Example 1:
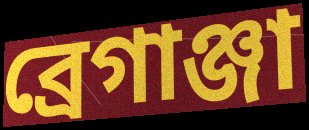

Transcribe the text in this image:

ব্রেগাঞ্জা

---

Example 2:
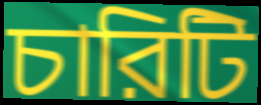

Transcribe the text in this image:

চারিটি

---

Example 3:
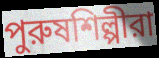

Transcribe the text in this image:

পুরুষশিল্পীরা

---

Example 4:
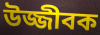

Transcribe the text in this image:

উজ্জীবক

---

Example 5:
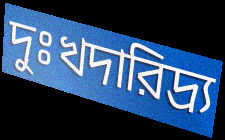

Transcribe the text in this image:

দুঃখদারিদ্র্য